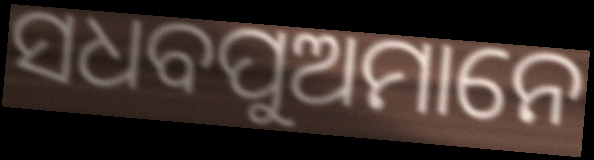
ସଧବପୁଅମାନେ